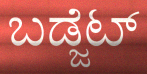
ಬಡ್ಜೆಟ್